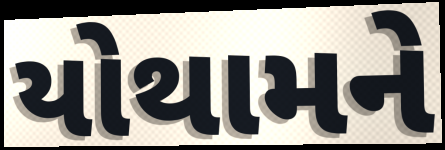
યોથામને